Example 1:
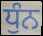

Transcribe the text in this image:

ਧੁੰਨ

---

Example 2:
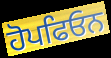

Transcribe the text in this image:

ਹੋਪਫਿਓਨ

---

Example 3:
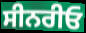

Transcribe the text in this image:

ਸੀਨਰੀਓ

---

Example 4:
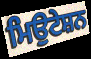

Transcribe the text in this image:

ਮਿਉਟੇਸ਼ਨ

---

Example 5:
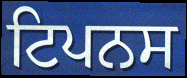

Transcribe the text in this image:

ਟਿਪਨਸ